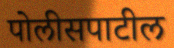
पोलीसपाटील